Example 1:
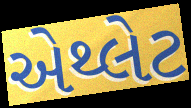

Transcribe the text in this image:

એથ્લેટ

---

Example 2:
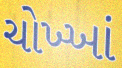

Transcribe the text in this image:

ચોખ્ખાં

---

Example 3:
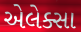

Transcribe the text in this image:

એલેક્સા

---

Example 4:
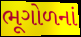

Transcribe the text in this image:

ભૂગોળનાં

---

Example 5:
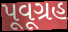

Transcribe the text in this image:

પૂવૂગ્રહ